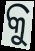
କୁ